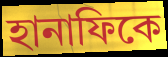
হানাফিকে